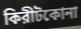
কিরীটকোনা